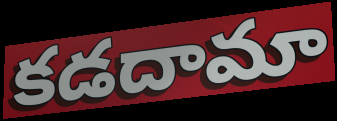
కడదామా